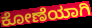
ಕೋಣೆಯಾಗಿ